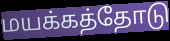
மயக்கத்தோடு